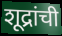
शूद्रांची